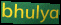
bhulya